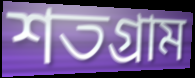
শতগ্রাম